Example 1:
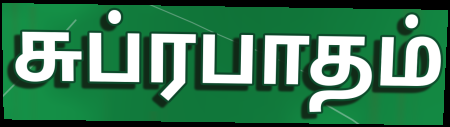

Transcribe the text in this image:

சுப்ரபாதம்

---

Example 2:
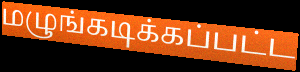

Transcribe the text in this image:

மழுங்கடிக்கப்பட்ட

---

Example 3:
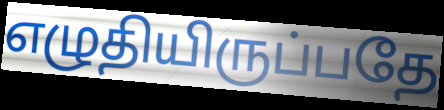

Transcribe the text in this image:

எழுதியிருப்பதே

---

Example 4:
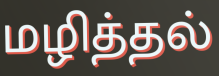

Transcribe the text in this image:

மழித்தல்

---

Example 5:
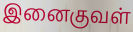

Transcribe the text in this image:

இனைகுவள்